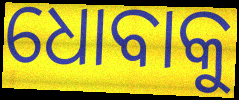
ଧୋବାକୁ